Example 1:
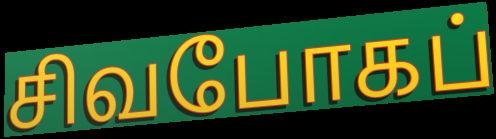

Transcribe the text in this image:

சிவபோகப்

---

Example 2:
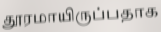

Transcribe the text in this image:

தூரமாயிருப்பதாக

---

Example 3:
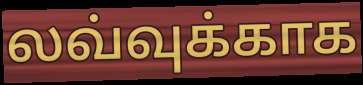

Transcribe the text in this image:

லவ்வுக்காக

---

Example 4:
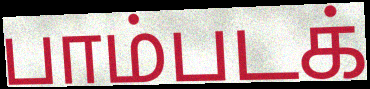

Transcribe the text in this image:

பாம்படக்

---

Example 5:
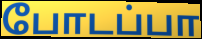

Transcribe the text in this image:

போடப்பா